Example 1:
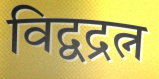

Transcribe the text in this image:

विद्वद्रत्न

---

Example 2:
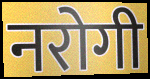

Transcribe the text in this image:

नरोगी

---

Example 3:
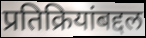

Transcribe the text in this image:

प्रतिक्रियांबद्दल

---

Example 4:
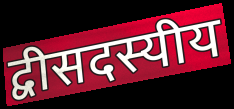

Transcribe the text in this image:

द्वीसदस्यीय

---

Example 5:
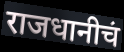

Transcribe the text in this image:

राजधानीचं